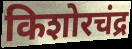
किशोरचंद्र